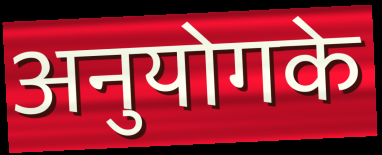
अनुयोगके